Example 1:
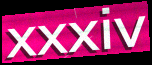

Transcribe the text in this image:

xxxiv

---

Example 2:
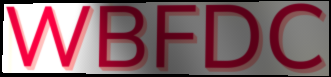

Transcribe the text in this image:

WBFDC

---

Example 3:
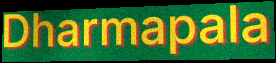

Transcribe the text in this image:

Dharmapala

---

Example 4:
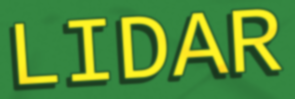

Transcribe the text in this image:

LIDAR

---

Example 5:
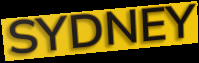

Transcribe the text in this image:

SYDNEY